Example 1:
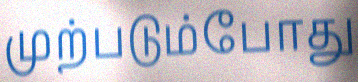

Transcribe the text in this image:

முற்படும்போது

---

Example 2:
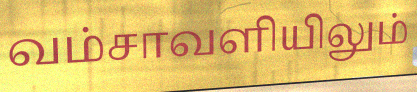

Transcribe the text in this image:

வம்சாவளியிலும்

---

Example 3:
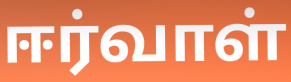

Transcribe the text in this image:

ஈர்வாள்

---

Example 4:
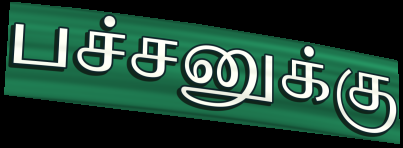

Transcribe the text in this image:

பச்சனுக்கு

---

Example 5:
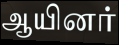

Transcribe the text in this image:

ஆயினர்